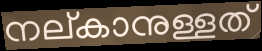
നല്കാനുള്ളത്